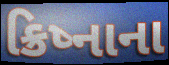
ક્રિષ્નાના